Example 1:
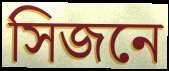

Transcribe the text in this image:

সিজনে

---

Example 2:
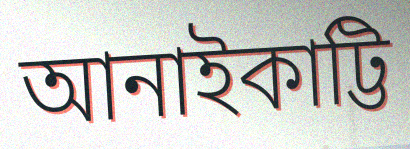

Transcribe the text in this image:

আনাইকাট্টি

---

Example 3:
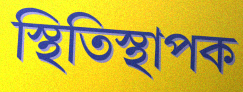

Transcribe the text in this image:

স্থিতিস্থাপক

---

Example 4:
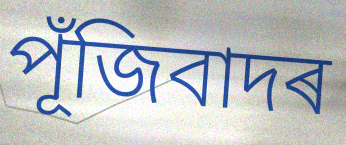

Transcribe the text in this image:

পূঁজিবাদৰ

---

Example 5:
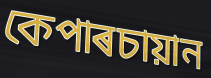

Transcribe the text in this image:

কেপাৰচায়ান